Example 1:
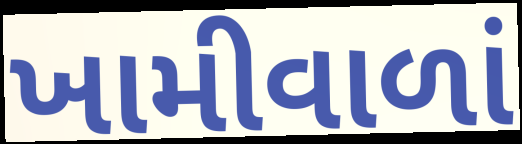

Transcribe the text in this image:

ખામીવાળાં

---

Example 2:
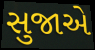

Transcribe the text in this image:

સુજાએ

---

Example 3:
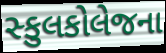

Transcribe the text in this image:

સ્કુલકોલેજના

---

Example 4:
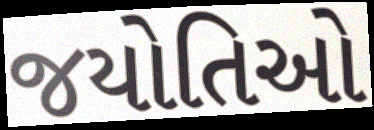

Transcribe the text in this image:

જયોતિઓ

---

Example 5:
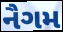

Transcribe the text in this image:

નૈગમ